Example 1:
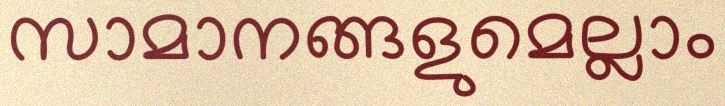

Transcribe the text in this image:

സാമാനങ്ങളുമെല്ലാം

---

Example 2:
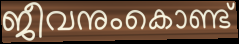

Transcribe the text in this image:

ജീവനുംകൊണ്ട്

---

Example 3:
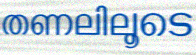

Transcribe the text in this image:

തണലിലൂടെ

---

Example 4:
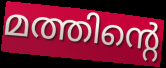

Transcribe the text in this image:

മത്തിന്റെ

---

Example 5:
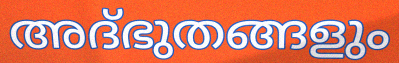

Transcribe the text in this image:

അദ്ഭുതങ്ങളും